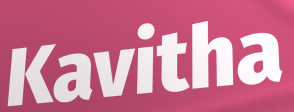
Kavitha